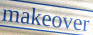
makeover